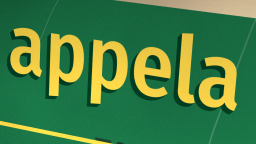
appela